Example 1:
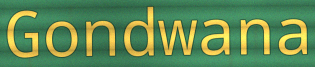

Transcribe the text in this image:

Gondwana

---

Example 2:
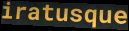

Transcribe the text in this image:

iratusque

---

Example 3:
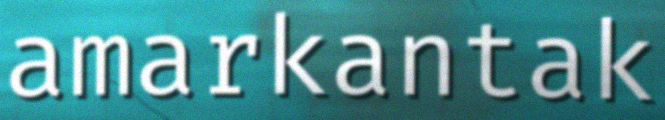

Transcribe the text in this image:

amarkantak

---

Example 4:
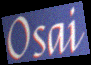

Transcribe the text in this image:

Osai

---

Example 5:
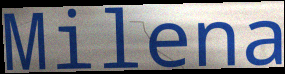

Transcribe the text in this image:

Milena